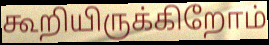
கூறியிருக்கிறோம்